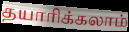
தயாரிக்கலாம்